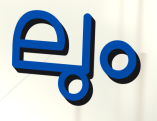
ലും